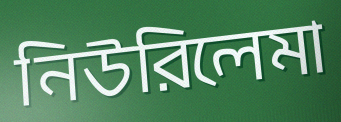
নিউরিলেমা